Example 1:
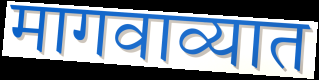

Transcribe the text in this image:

मागवाव्यात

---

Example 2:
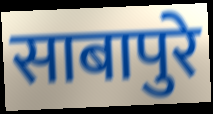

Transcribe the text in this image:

साबापुरे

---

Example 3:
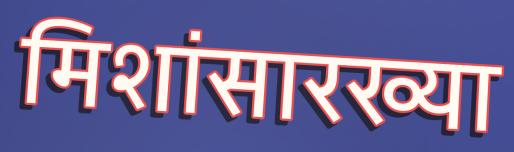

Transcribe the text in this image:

मिशांसारख्या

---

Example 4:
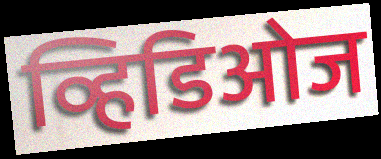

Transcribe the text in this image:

व्हिडिओज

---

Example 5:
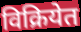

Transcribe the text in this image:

विक्रियेत